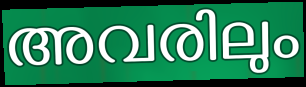
അവരിലും